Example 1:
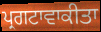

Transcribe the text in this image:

ਪ੍ਰਗਟਾਵਾਕੀਤਾ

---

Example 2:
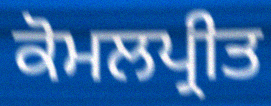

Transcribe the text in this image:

ਕੋਮਲਪ੍ਰੀਤ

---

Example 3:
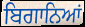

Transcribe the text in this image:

ਬਿਗਾਨਿਆਂ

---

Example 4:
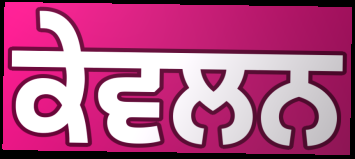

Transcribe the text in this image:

ਕੇਵਲਨ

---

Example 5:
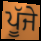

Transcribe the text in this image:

ਪੂੱਜੇ